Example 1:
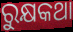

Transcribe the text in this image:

ରୁକ୍ଷକଥା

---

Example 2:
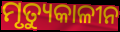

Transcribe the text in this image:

ମୃତ୍ୟୁକାଳୀନ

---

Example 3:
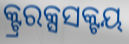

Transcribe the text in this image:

କ୍ଟ୍ରରକ୍ସସକ୍ଟୟ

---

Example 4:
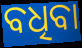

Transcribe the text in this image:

ବଧିବା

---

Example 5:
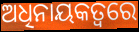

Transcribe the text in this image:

ଅଧିନାୟକତ୍ବରେ